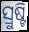
ସ୍ରୁଷ୍ଟି